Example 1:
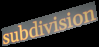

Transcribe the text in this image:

subdivision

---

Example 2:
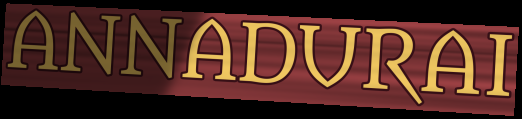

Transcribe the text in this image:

ANNADURAI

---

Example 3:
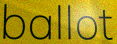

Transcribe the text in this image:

ballot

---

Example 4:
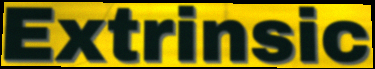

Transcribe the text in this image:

Extrinsic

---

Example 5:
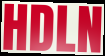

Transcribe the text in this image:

HDLN